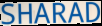
SHARAD